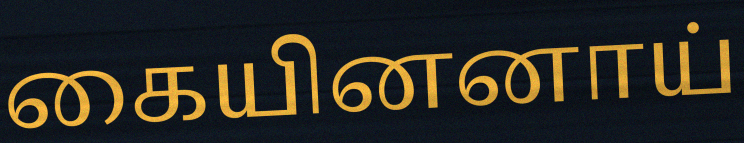
கையினனாய்